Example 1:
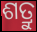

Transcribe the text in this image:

ଶତ୍ରୁ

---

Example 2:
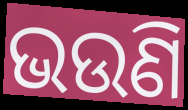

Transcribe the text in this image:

ଭଉଣି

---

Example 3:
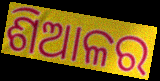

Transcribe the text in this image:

ଶିଆଳର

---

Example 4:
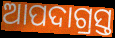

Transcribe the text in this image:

ଆପଦାଗ୍ରସ୍ତ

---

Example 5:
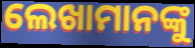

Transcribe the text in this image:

ଲେଖାମାନଙ୍କୁ